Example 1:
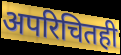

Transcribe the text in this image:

अपरिचितही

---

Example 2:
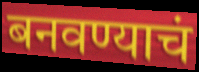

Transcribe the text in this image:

बनवण्याचं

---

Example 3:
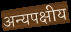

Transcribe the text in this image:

अन्यपक्षीय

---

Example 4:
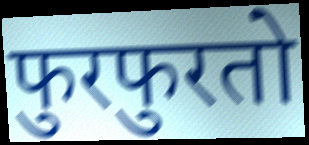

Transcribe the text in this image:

फुरफुरतो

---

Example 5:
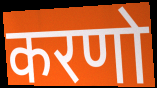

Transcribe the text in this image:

करणो